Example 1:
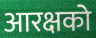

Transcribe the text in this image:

आरक्षको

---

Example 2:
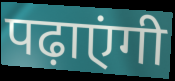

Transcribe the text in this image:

पढ़ाएंगी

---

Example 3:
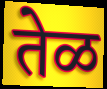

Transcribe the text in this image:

तेळ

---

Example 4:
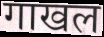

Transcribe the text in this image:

गाखल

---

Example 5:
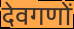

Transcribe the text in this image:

देवगणों